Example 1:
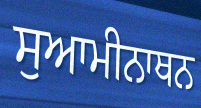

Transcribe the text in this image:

ਸੁਆਮੀਨਾਥਨ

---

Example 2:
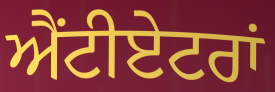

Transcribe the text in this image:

ਐਂਟੀਏਟਰਾਂ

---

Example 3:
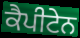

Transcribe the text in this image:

ਕੈਪੀਟੇਨ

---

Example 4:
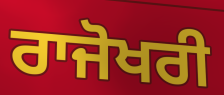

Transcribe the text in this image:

ਰਾਜੋਖਰੀ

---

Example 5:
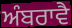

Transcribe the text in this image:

ਅੰਬਰਾਵੈ